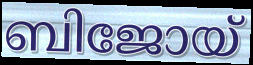
ബിജോയ്